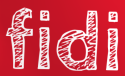
fidi